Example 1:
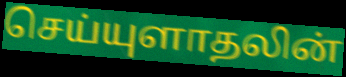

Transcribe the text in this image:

செய்யுளாதலின்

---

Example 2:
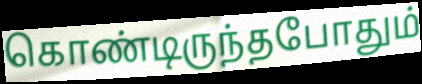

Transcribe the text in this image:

கொண்டிருந்தபோதும்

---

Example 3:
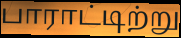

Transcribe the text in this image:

பாராட்டிற்று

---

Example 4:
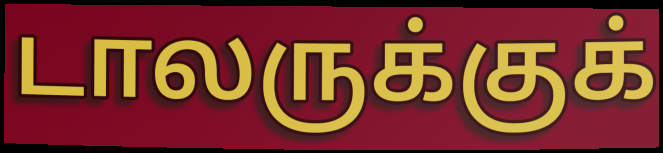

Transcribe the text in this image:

டாலருக்குக்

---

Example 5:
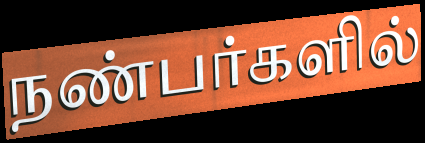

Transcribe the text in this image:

நண்பர்களில்